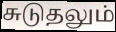
சுடுதலும்